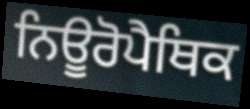
ਨਿਊਰੋਪੈਥਿਕ